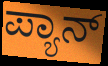
ಪ್ಯಾನ್